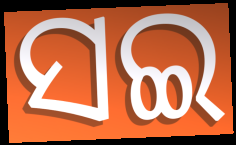
ସଇ